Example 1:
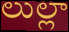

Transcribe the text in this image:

లుల్లా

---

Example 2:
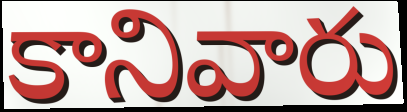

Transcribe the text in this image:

కానివారు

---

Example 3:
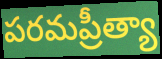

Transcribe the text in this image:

పరమప్రీత్యా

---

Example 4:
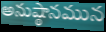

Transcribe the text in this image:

అనుష్ఠానమున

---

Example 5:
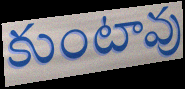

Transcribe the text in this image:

కుంటావు